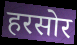
हरसोर